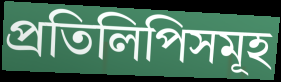
প্ৰতিলিপিসমূহ